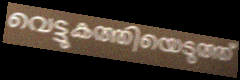
വെട്ടുകത്തിയെടുത്ത്